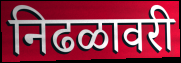
निढळावरी